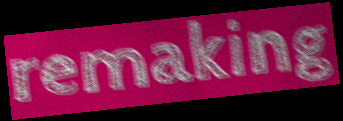
remaking